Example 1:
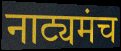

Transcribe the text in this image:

नाट्यमंच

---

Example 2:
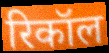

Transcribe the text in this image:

रिकॉल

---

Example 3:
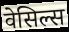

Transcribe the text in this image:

वेसिल्स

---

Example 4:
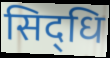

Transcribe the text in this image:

सिद्धि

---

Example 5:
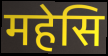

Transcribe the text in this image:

महेसि